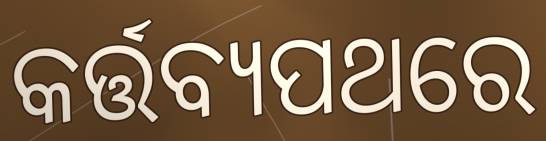
କର୍ତ୍ତବ୍ୟପଥରେ